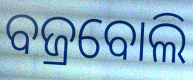
ବଜ୍ରବୋଲି